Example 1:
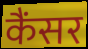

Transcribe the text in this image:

कैंसर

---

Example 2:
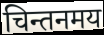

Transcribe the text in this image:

चिन्तनमय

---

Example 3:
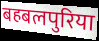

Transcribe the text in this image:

बहबलपुरिया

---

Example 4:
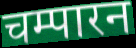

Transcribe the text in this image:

चम्पारन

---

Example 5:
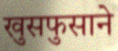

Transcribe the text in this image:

खुसफुसाने